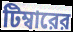
টিম্বারের